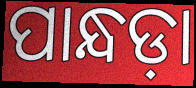
ପାନ୍ଧଡ଼ା